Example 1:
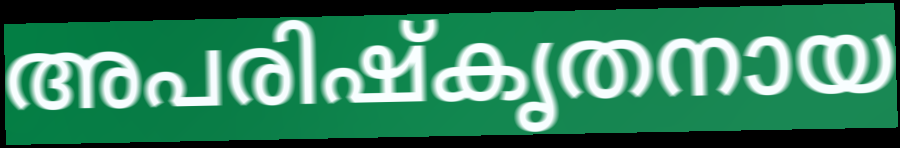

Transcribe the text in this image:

അപരിഷ്കൃതനായ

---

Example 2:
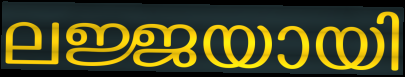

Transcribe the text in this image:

ലജ്ജയായി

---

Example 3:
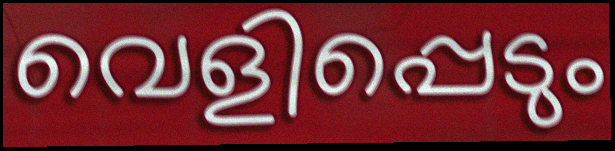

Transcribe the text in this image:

വെളിപ്പെടും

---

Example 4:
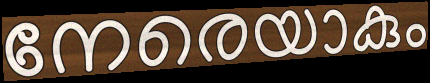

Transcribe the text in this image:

നേരെയാകും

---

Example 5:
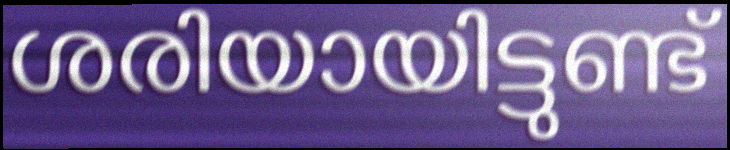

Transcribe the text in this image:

ശരിയായിട്ടുണ്ട്